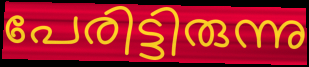
പേരിട്ടിരുന്നു